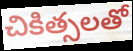
చికిత్సలతో